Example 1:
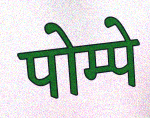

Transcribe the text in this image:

पोम्पे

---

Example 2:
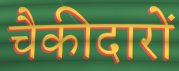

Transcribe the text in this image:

चैकीदारों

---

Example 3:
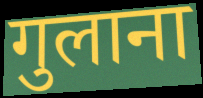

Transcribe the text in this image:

गुलाना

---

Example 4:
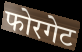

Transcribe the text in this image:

फोरगेट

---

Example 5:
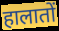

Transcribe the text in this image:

हालातों